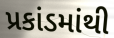
પ્રકાંડમાંથી